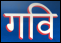
गवि